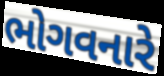
ભોગવનારે